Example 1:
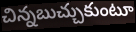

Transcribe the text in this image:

చిన్నబుచ్చుకుంటూ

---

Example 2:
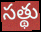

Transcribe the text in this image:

సత్థు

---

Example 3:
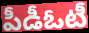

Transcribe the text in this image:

పీడీఓటీ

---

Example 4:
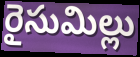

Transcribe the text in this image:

రైసుమిల్లు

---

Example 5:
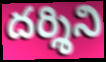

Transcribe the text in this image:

దర్శిని